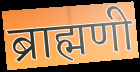
ब्राह्मणी